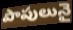
పాపులునై